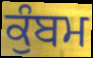
ਕੁੰਬਮ